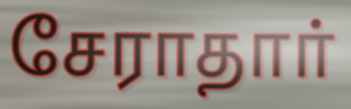
சேராதார்